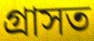
গ্ৰাসত